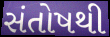
સંતોષથી